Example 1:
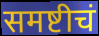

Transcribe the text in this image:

समष्टीचं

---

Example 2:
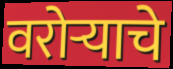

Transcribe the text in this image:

वरोऱ्याचे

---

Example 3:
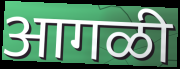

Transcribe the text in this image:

आगळी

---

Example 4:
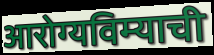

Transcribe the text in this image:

आरोग्यविम्याची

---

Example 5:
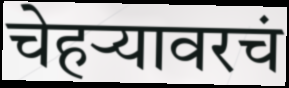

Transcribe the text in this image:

चेहऱ्यावरचं